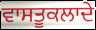
ਵਾਸਤੂਕਲਾਦੇ